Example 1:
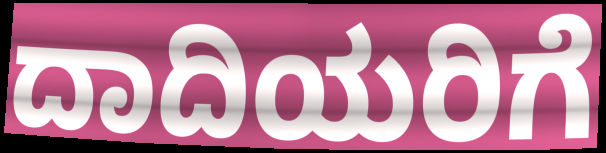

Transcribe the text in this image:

ದಾದಿಯರಿಗೆ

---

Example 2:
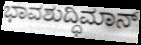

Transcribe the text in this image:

ಭಾವಶುದ್ಧಿಮಾನ್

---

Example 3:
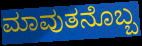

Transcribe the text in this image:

ಮಾವುತನೊಬ್ಬ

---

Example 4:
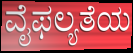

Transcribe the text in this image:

ವೈಫಲ್ಯತೆಯ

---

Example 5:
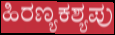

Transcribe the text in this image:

ಹಿರಣ್ಯಕಶ್ಯಪು